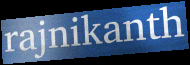
rajnikanth